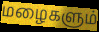
மழைகளும்